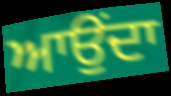
ਆਉੰਦਾ